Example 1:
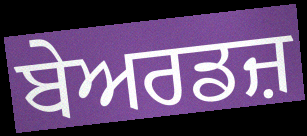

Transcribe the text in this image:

ਬੇਅਰਡਜ਼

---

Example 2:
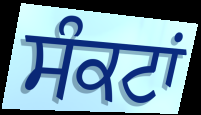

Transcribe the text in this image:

ਸੰਕਟਾਂ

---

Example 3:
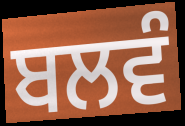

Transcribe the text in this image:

ਬਲਵੰ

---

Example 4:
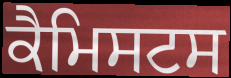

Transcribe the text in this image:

ਕੈਮਿਸਟਸ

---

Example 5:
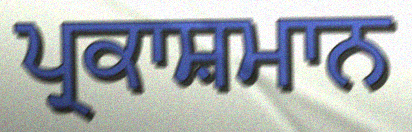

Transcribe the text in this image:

ਪ੍ਰਕਾਸ਼ਮਾਨ